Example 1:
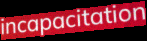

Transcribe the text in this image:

incapacitation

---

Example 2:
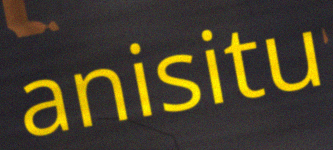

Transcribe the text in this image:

anisitu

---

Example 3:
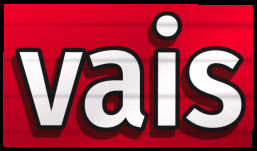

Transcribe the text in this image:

vais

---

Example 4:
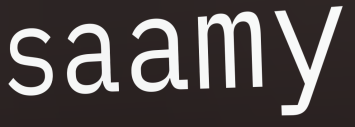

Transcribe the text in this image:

saamy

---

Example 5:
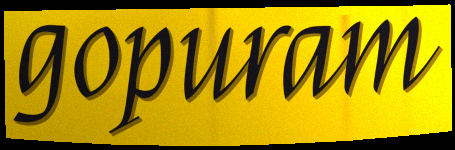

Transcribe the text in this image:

gopuram